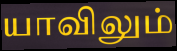
யாவிலும்